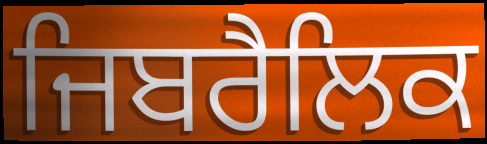
ਜਿਬਰੈਲਿਕ